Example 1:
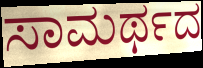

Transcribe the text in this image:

ಸಾಮರ್ಥದ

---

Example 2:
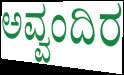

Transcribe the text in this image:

ಅವ್ವಂದಿರ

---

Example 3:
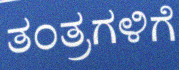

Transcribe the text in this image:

ತಂತ್ರಗಳಿಗೆ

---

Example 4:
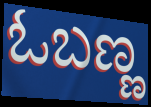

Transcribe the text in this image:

ಓಬಣ್ಣ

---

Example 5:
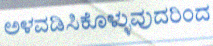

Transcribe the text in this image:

ಅಳವಡಿಸಿಕೊಳ್ಳುವುದರಿಂದ